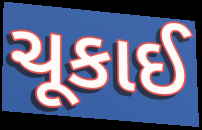
ચૂકાઈ